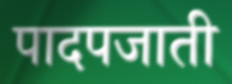
पादपजाती